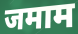
जमाम